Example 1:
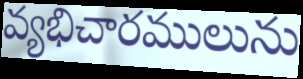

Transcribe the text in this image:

వ్యభిచారములును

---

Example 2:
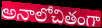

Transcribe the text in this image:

అనాలోచితంగా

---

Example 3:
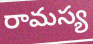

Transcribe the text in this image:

రామస్య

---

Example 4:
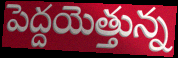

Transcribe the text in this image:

పెద్దయెత్తున్న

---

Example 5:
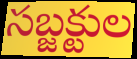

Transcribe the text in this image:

సబ్జక్టుల